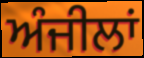
ਅੰਜੀਲਾਂ